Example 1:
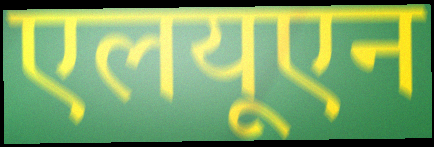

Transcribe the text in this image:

एलयूएन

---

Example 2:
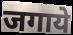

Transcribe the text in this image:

जगाये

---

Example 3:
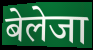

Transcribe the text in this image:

बेलेजा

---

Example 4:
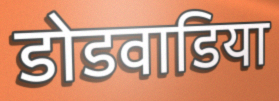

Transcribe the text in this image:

डोडवाडिया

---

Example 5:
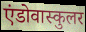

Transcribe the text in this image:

एंडोवास्कुलर